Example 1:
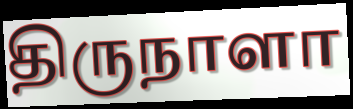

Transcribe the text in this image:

திருநாளா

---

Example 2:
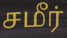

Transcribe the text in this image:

சமீர்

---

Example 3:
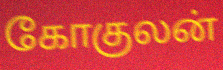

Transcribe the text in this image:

கோகுலன்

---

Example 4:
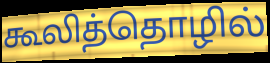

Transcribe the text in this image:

கூலித்தொழில்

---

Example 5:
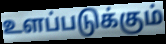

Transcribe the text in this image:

உளப்படுக்கும்